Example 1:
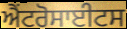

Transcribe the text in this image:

ਐਂਟਰੋਸਾਈਟਸ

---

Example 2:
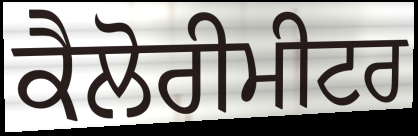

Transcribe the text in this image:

ਕੈਲੋਰੀਮੀਟਰ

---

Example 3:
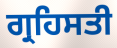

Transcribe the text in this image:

ਗ੍ਰਹਿਸਤੀ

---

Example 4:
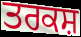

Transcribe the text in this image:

ਤਰਕਸ਼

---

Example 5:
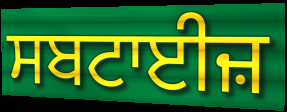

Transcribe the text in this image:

ਸਬਟਾਈਜ਼